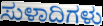
ಸುಳಾದಿಗಳು